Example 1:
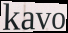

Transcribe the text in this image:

kavo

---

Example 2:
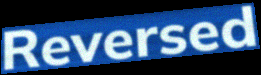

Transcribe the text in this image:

Reversed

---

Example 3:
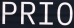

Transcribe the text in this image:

PRIO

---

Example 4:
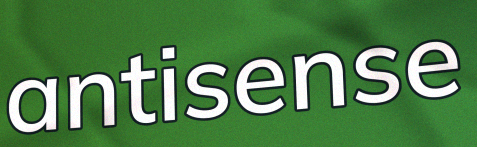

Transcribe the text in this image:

antisense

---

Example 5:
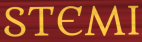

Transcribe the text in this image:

STEMI